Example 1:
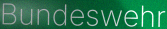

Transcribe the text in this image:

Bundeswehr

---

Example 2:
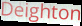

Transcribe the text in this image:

Deighton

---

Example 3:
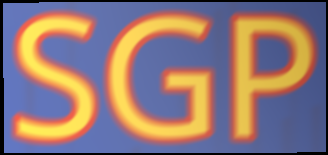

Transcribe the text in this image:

SGP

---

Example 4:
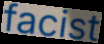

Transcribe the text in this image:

facist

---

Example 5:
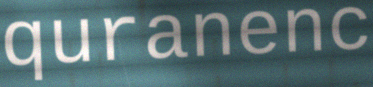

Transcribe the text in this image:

quranenc